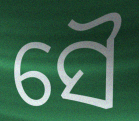
ସୈ